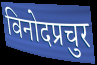
विनोदप्रचुर